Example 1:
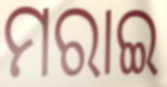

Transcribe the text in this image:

ମରାଇ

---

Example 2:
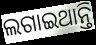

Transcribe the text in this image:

ଲଗାଇଥାନ୍ତି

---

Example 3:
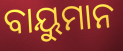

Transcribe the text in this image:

ବାୟୁମାନ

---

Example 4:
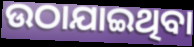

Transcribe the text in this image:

ଉଠାଯାଇଥିବା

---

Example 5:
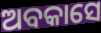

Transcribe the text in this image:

ଅବକାସେ